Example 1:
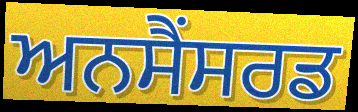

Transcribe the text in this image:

ਅਨਸੈਂਸਰਡ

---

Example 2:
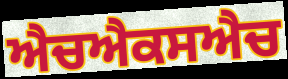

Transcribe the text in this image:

ਐਚਐਕਸਐਚ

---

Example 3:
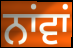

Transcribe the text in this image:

ਨਾਂਵਾਂ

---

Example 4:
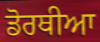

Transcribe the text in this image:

ਡੋਰਥੀਆ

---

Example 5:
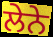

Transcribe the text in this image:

ਲੇਨੇ